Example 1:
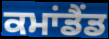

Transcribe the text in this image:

ਕਮਾਂਡੈਂਡ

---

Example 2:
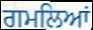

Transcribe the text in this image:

ਗਮਲਿਆਂ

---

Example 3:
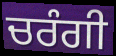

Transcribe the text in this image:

ਚਰੰਗੀ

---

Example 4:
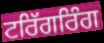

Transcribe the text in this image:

ਟਰਿੱਗਰਿੰਗ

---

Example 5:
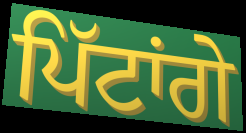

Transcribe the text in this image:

ਪਿੱਟਾਂਗੇ